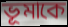
ভূমাকে